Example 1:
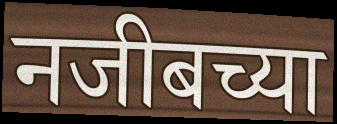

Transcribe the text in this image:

नजीबच्या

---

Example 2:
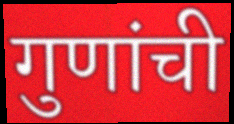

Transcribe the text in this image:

गुणांची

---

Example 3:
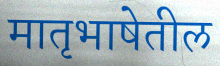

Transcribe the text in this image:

मातृभाषेतील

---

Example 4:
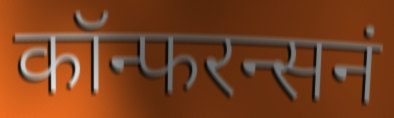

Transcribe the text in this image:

कॉन्फरन्सनं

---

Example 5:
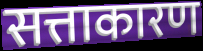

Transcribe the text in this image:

सत्ताकारण